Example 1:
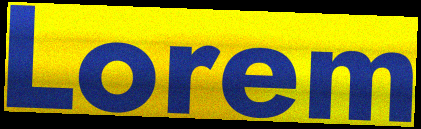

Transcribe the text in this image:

Lorem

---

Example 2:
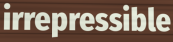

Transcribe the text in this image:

irrepressible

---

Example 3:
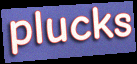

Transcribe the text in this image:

plucks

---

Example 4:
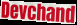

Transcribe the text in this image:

Devchand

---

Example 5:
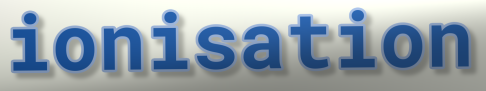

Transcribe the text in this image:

ionisation